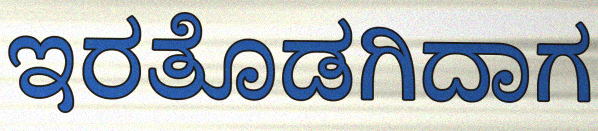
ಇರತೊಡಗಿದಾಗ